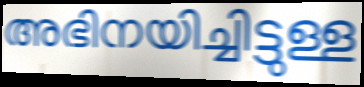
അഭിനയിച്ചിട്ടുള്ള